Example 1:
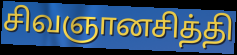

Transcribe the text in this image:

சிவஞானசித்தி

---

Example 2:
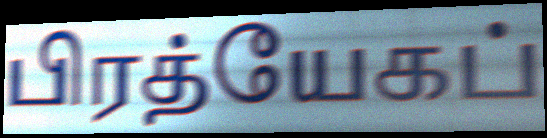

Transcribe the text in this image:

பிரத்யேகப்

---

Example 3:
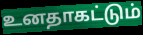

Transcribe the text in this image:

உனதாகட்டும்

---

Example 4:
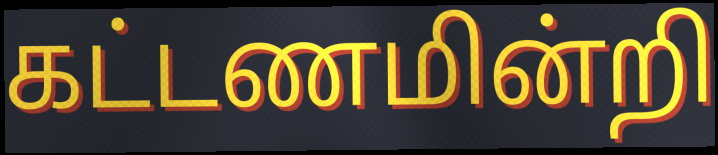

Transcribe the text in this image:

கட்டணமின்றி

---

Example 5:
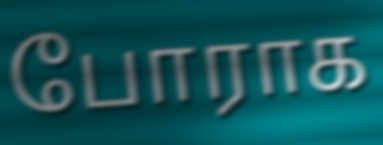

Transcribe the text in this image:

போராக